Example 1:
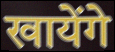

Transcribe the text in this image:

खायेंगे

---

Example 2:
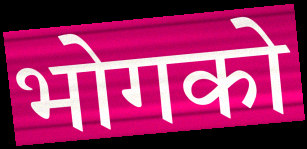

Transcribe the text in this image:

भोगको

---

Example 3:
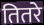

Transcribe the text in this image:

तितरे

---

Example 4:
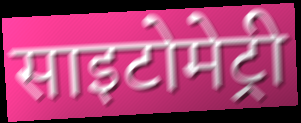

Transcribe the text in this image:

साइटोमेट्री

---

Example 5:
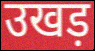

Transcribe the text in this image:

उखड़